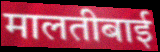
मालतीबाई